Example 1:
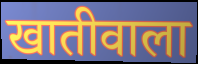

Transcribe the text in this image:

खातीवाला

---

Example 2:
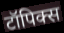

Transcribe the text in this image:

टॉपिक्स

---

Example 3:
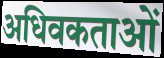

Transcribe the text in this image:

अधिवकताओं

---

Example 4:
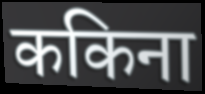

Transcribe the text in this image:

ककिना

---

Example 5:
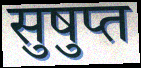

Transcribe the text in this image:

सुषुप्त